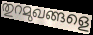
തുറമുഖങ്ങളെ